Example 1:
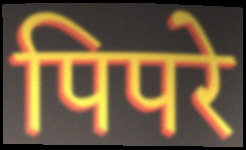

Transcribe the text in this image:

पिपरे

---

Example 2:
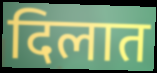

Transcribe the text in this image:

दिलात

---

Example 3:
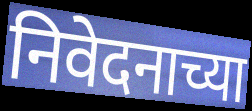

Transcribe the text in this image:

निवेदनाच्या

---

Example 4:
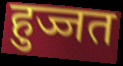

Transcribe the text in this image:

हुज्जत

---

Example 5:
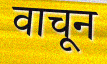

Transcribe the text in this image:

वाचून